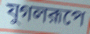
যুগলরূপে